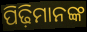
ପିଢ଼ିମାନଙ୍କ